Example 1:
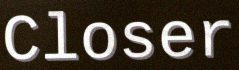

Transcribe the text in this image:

Closer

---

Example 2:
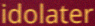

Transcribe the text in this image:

idolater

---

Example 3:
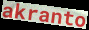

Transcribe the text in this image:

akranto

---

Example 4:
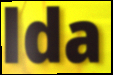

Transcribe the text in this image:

lda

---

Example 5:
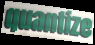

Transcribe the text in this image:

quantize